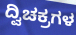
ದ್ವಿಚಕ್ರಗಳ